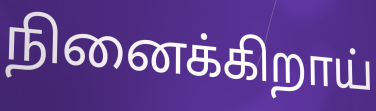
நினைக்கிறாய்